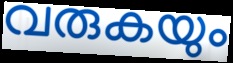
വരുകയും